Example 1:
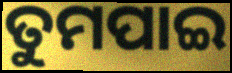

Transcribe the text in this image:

ତୁମପାଇ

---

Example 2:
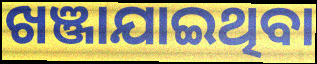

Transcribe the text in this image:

ଖଞ୍ଜାଯାଇଥିବା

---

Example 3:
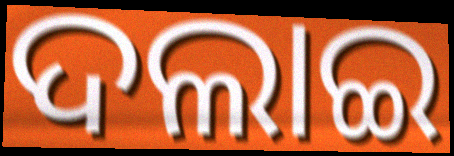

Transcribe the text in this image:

ଦଲାଇ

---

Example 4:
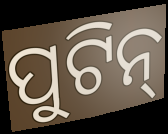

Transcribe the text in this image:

ପୁଟିନ୍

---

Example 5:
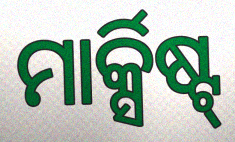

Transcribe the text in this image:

ମାର୍କ୍ସିଷ୍ଟ୍